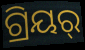
ଗ୍ରିୟର୍